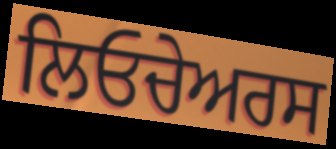
ਲਿਓਚੇਅਰਸ